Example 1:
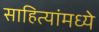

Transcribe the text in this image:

साहित्यांमध्ये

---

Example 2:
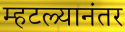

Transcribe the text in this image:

म्हटल्यानंतर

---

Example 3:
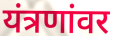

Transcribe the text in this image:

यंत्रणांवर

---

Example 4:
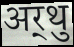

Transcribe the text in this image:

अर्थु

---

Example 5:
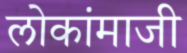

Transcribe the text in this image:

लोकांमाजी